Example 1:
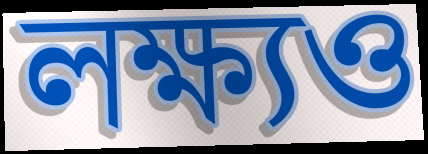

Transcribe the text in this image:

লক্ষ্যও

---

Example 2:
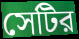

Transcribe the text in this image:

সেটির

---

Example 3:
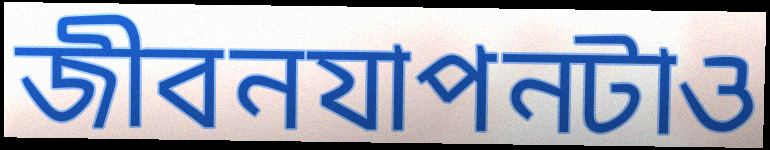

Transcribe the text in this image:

জীবনযাপনটাও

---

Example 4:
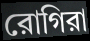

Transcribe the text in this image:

রোগিরা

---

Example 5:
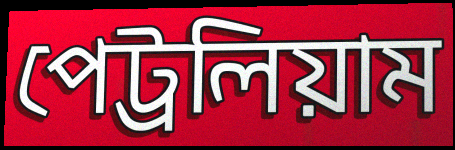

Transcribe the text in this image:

পেট্রলিয়াম